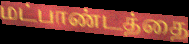
மட்பாண்டத்தை